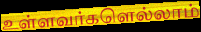
உள்ளவர்களெல்லாம்